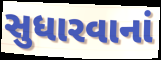
સુધારવાનાં